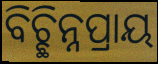
ବିଚ୍ଛିନ୍ନପ୍ରାୟ